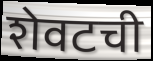
शेवटची